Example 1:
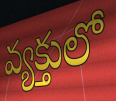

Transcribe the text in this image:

వ్యక్తులో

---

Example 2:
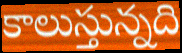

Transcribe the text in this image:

కాలుస్తున్నది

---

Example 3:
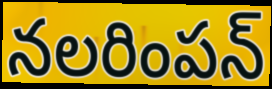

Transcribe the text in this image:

నలరింపన్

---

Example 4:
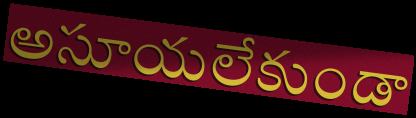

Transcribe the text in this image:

అసూయలేకుండా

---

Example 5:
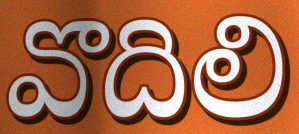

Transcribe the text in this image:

వొదిలి